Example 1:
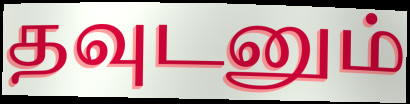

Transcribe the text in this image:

தவுடனும்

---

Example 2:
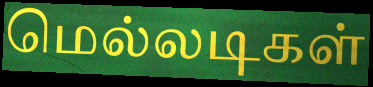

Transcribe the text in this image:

மெல்லடிகள்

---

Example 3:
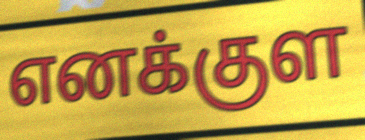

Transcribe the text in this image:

எனக்குள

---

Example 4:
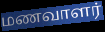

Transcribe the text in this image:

மணவாளர்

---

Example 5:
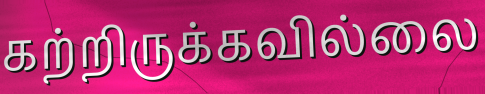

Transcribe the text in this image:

கற்றிருக்கவில்லை